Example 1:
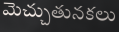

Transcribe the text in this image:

మెచ్చుతునకలు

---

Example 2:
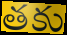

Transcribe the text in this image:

తకు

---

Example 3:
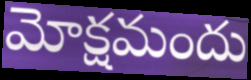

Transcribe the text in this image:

మోక్షమందు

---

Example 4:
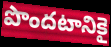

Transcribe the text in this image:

పొందటానికై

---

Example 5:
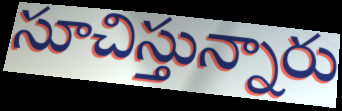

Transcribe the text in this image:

సూచిస్తున్నారు